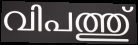
വിപത്തു്